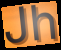
Jh